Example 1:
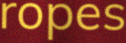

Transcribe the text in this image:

ropes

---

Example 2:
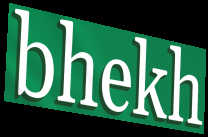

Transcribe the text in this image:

bhekh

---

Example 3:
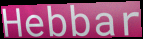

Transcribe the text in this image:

Hebbar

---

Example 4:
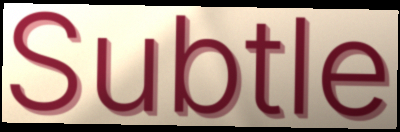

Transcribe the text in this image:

Subtle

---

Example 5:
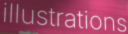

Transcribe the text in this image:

illustrations